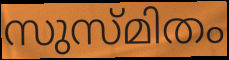
സുസ്മിതം